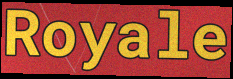
Royale